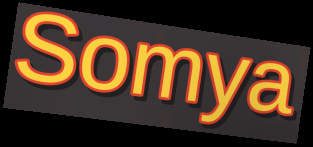
Somya